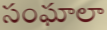
సంఘాలా